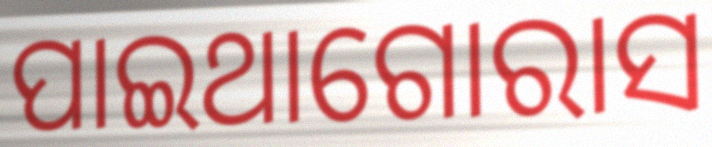
ପାଇଥାଗୋରାସ